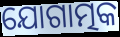
ଯୋଗାତ୍ମକ